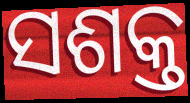
ସଶକ୍ତ